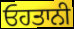
ਓਹਤਾਨੀ